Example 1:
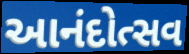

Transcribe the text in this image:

આનંદોત્સવ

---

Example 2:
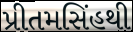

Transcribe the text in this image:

પ્રીતમસિંહથી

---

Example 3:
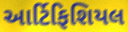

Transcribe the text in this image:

આર્ટિફિશિયલ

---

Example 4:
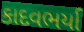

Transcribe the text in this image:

કાદવભર્યા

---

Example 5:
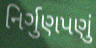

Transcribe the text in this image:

નિર્ગુણપણું